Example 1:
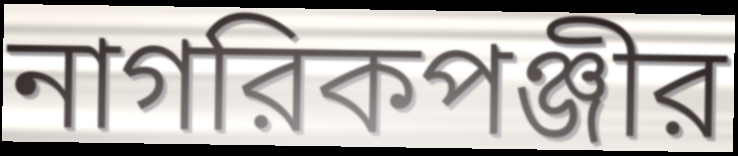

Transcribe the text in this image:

নাগরিকপঞ্জীর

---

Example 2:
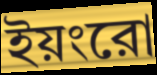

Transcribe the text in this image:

ইয়ংরো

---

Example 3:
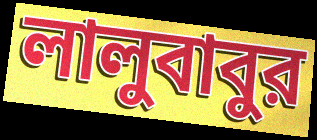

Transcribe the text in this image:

লালুবাবুর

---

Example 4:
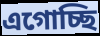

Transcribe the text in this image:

এগোচ্ছি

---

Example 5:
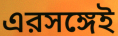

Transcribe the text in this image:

এরসঙ্গেই